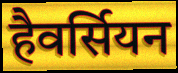
हैवर्सियन